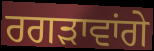
ਰਗੜਾਵਾਂਗੇ